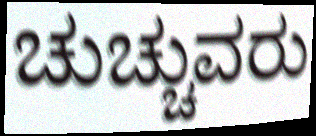
ಚುಚ್ಚುವರು